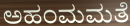
ಅಹಂಮಮತೆ